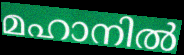
മഹാനിൽ